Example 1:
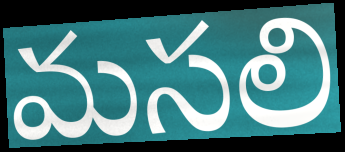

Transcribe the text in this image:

మసలి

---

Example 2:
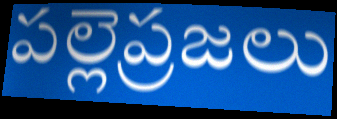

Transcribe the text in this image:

పల్లెప్రజలు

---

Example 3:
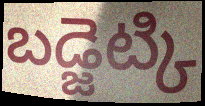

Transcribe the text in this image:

బడ్జెట్కి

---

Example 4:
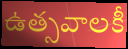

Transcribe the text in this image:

ఉత్సవాలకీ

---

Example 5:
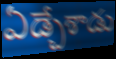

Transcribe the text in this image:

ఏడ్చేశాడు